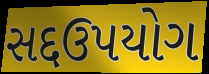
સદ્દઉપયોગ